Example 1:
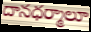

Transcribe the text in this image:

దానధర్మాలూ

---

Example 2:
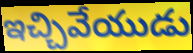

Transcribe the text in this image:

ఇచ్చివేయుడు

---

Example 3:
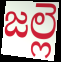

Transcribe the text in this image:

జల్లె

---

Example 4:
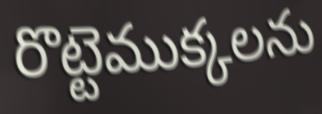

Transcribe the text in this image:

రొట్టెముక్కలను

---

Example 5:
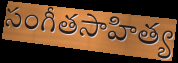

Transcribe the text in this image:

సంగీతసాహిత్య